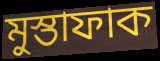
মুস্তাফাক